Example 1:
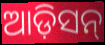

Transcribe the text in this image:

ଆଡ଼ିସନ୍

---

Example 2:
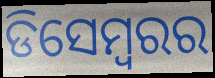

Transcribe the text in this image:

ଡିସେମ୍ୱରର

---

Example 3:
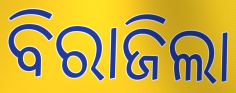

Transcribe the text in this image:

ବିରାଜିଲା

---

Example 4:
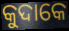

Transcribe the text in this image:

କୁଦାକେ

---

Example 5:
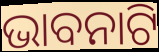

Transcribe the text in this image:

ଭାବନାଟି